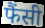
फैंसी